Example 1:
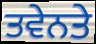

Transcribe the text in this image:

ਤਵੇਨਤੇ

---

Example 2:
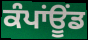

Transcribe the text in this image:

ਕੰਪਾਂਊਂਡ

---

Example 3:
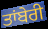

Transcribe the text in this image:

ਤਾਂਬੇਰੀ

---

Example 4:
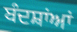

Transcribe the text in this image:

ਬੰਦਸ਼ਾਂਆਂ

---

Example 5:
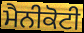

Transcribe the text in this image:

ਮੈਨੀਕੋਟੀ